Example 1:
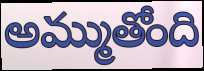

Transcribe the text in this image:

అమ్ముతోంది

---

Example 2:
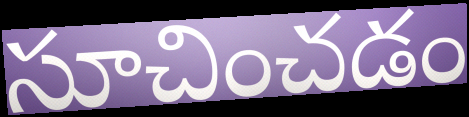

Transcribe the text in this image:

సూచించడం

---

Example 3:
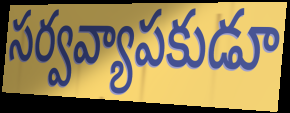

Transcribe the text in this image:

సర్వవ్యాపకుడూ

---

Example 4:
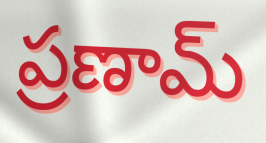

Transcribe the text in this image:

ప్రణామ్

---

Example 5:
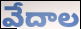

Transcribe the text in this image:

వేదాల